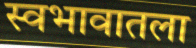
स्वभावातला